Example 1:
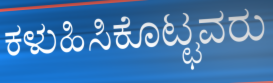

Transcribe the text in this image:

ಕಳುಹಿಸಿಕೊಟ್ಟವರು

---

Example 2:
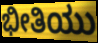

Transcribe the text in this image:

ಭೀತಿಯು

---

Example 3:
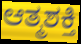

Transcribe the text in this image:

ಆತ್ಮಶಕ್ತಿ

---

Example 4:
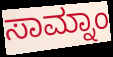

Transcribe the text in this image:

ಸಾಮ್ನಾಂ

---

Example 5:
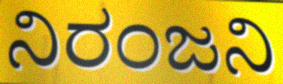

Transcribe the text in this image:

ನಿರಂಜನಿ